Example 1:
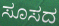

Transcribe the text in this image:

ಸೂಸದ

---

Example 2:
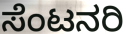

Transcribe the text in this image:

ಸೆಂಟನರಿ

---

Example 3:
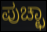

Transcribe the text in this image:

ಪುಚ್ಛಾ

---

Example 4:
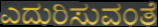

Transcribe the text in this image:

ಎದುರಿಸುವಂತೆ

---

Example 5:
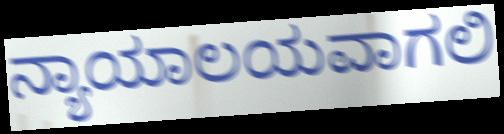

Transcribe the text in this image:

ನ್ಯಾಯಾಲಯವಾಗಲಿ